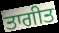
ਤਾਗੀਤ